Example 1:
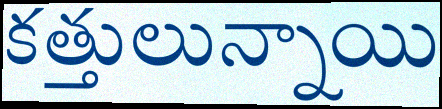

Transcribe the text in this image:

కత్తులున్నాయి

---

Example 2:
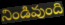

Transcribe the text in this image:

నిండివుంది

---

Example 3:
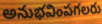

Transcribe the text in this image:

అనుభవింపగలరు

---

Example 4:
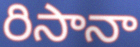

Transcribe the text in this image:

రిసానా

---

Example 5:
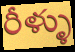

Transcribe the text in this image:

రీళ్ళు